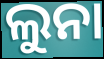
ଲୁନା